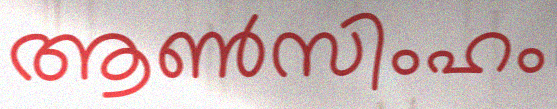
ആൺസിംഹം